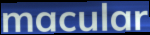
macular